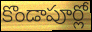
కొండాపూర్లో